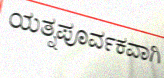
ಯತ್ನಪೂರ್ವಕವಾಗಿ